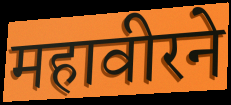
महावीरने